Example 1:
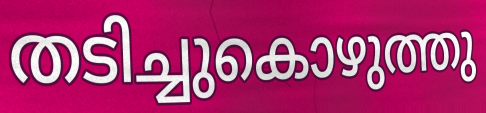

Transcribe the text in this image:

തടിച്ചുകൊഴുത്തു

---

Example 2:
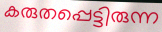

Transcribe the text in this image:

കരുതപ്പെട്ടിരുന്ന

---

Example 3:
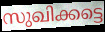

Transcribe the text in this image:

സുഖിക്കട്ടെ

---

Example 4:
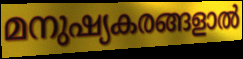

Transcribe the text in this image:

മനുഷ്യകരങ്ങളാൽ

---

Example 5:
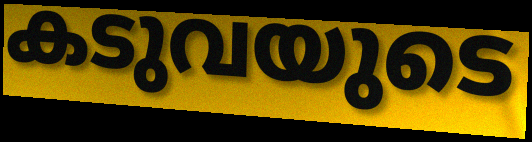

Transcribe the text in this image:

കടുവയുടെ